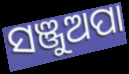
ସଞ୍ଜୁଅପା